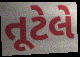
તૂટેલે